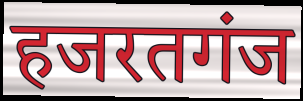
हजरतगंज